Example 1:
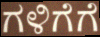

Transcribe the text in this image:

ಗಳಿಗೆಗೆ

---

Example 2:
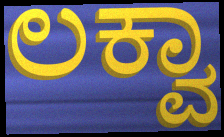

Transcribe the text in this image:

ಲಕ್ವಾ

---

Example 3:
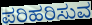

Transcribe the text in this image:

ಪರಿಹರಿಸುವ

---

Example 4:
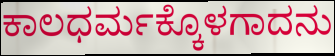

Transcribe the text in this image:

ಕಾಲಧರ್ಮಕ್ಕೊಳಗಾದನು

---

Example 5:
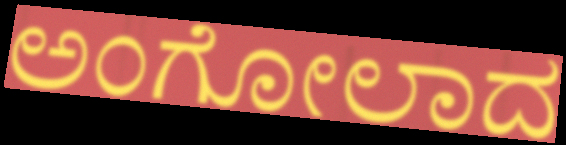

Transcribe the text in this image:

ಅಂಗೋಲಾದ